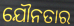
ଯୌନତାର